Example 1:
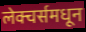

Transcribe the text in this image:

लेक्चर्समधून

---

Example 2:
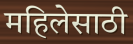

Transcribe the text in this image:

महिलेसाठी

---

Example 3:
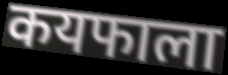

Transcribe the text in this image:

कयफाला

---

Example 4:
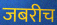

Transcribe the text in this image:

जबरीच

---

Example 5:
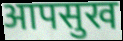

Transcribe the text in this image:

आपसुख